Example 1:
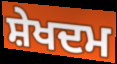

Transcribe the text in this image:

ਸ਼ੇਖਦਮ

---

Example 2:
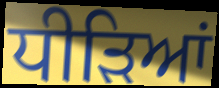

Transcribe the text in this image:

ਧੀੜਿਆਂ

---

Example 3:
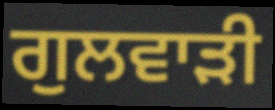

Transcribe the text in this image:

ਗੁਲਵਾੜੀ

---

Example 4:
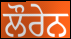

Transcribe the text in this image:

ਲੌਰੇਨ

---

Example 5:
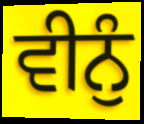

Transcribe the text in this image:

ਵੀਨੁੰ